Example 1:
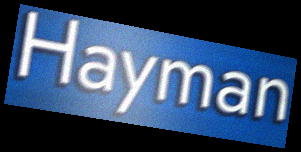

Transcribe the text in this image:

Hayman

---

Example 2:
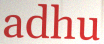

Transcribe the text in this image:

adhu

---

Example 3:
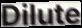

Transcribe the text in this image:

Dilute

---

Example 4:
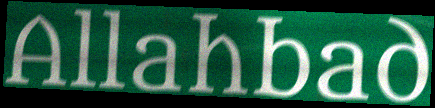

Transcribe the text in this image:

Allahbad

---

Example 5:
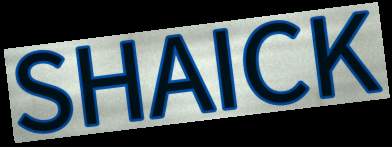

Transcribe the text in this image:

SHAICK